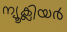
ന്യൂക്ലിയർ